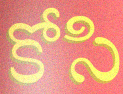
కోసి